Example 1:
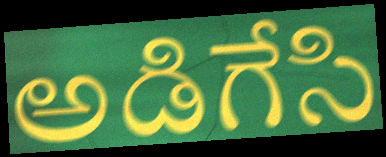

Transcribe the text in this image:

అడిగేసి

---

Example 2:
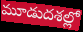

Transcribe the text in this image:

మూడుదశల్లో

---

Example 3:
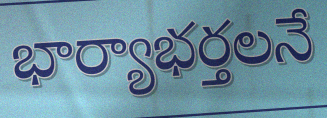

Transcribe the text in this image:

భార్యాభర్తలనే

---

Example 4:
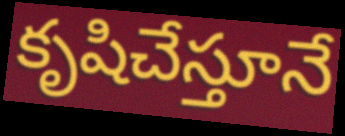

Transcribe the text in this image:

కృషిచేస్తూనే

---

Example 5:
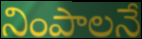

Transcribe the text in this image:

నింపాలనే